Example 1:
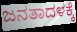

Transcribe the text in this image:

ಜನತಾದಳಕ್ಕೆ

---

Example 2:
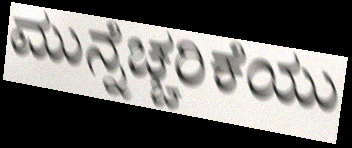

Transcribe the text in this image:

ಮುನ್ನೆಚ್ಚರಿಕೆಯು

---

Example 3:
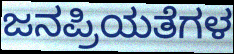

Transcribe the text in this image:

ಜನಪ್ರಿಯತೆಗಳ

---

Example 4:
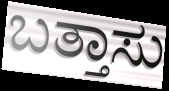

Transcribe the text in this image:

ಬತ್ತಾಸು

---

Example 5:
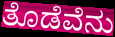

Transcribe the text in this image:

ತೊಡೆವೆನು